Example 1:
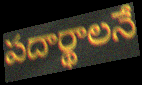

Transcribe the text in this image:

పదార్థాలనే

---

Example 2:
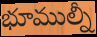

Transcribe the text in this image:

భూముల్నీ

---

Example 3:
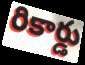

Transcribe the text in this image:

రికార్డు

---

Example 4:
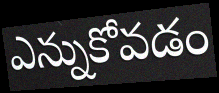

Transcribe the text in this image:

ఎన్నుకోవడం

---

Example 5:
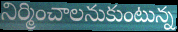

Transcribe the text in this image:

నిర్మించాలనుకుంటున్న